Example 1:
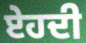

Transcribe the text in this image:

ਏਹਦੀ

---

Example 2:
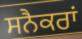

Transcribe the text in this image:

ਸਨੈਕਰਾਂ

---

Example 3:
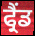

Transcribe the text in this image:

ਫ੍ਰੈਂਡ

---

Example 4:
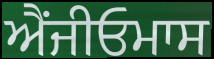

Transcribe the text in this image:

ਐਂਜੀਓਮਾਸ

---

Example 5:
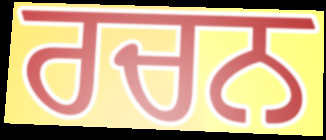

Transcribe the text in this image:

ਰਚਨ